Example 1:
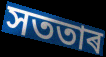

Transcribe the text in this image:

সততাৰ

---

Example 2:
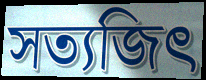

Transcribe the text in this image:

সত্যজিৎ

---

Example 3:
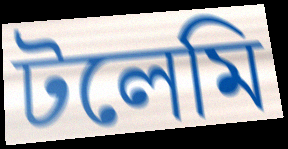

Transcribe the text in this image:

টলেমি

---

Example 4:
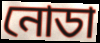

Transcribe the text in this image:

নোডা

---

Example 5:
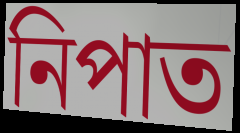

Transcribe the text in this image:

নিপাত